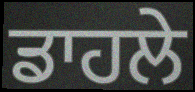
ਡਾਹਲੇ